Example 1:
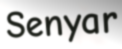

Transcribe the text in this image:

Senyar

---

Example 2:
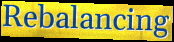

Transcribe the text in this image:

Rebalancing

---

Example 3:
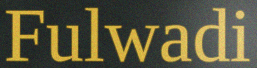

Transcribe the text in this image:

Fulwadi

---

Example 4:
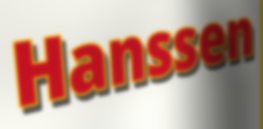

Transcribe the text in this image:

Hanssen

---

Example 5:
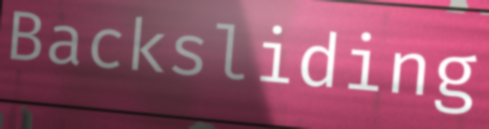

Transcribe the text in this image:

Backsliding